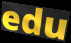
edu